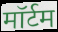
मॉर्टम